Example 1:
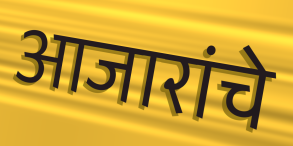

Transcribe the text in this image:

आजारांचे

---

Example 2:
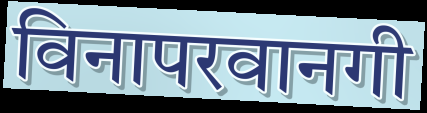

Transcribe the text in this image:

विनापरवानगी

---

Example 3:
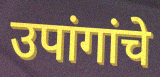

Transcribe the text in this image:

उपांगांचे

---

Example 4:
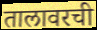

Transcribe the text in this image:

तालावरची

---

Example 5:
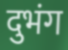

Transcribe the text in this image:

दुभंग